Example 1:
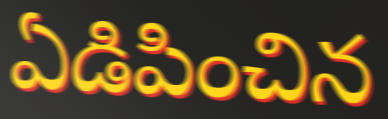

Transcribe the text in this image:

ఏడిపించిన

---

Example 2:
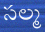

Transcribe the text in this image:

సల్మ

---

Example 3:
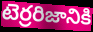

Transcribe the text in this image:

టెర్రరిజానికి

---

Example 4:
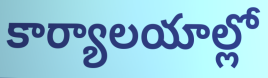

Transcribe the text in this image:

కార్యాలయాల్లో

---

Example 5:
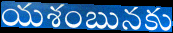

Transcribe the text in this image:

యశంబునకు